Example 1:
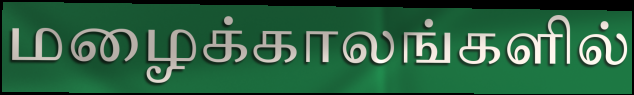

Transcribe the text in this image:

மழைக்காலங்களில்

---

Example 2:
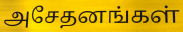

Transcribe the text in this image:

அசேதனங்கள்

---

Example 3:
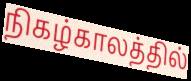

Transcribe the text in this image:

நிகழ்காலத்தில்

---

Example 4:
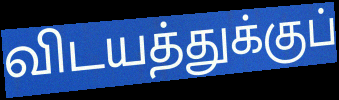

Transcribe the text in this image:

விடயத்துக்குப்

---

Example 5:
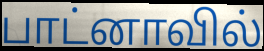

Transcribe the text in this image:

பாட்னாவில்